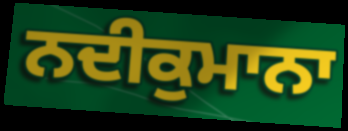
ਨਦੀਕੁਮਾਨਾ